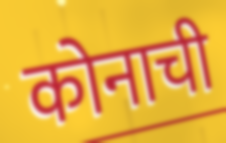
कोनाची